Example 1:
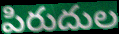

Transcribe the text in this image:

పిరుదుల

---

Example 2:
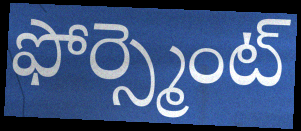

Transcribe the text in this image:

ఫోర్స్మెంట్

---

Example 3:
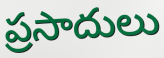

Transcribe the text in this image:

ప్రసాదులు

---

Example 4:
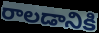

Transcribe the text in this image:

రాలడానికి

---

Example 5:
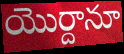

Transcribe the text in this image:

యొర్దానూ